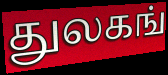
துலகங்